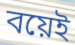
বয়েই